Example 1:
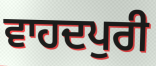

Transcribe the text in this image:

ਵਾਹਦਪੁਰੀ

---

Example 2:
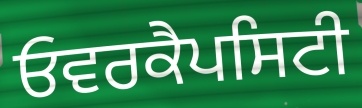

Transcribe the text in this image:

ਓਵਰਕੈਪਸਿਟੀ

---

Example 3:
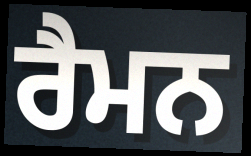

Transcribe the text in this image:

ਰੈਮਨ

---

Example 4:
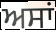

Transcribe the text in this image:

ਅਸਾਂ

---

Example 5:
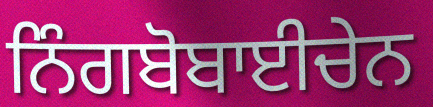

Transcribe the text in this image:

ਨਿੰਗਬੋਬਾਈਚੇਨ